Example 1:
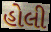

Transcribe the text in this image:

હોલી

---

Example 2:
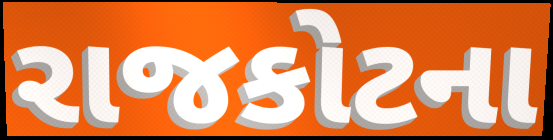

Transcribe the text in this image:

રાજકોટના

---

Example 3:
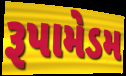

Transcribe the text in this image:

રૂપામેડમ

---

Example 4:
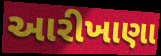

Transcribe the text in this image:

આરીખાણા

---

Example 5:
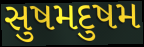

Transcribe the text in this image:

સુષમદુષમ